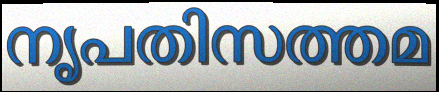
നൃപതിസത്തമ